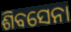
ଶିବସେନା